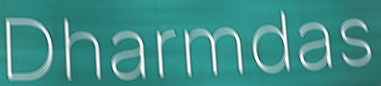
Dharmdas